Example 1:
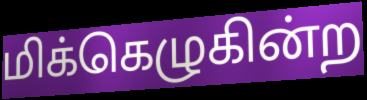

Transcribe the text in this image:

மிக்கெழுகின்ற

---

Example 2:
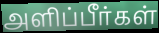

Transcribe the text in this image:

அளிப்பீர்கள்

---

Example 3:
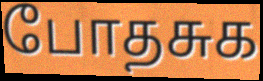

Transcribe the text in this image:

போதசுக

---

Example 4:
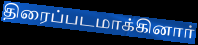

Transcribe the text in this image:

திரைப்படமாக்கினார்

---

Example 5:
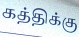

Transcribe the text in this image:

கத்திக்கு